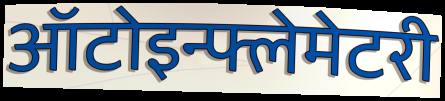
ऑटोइन्फ्लेमेटरी